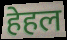
हेहल